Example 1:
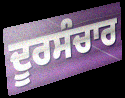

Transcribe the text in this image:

ਦੂਰਸੰਚਾਰ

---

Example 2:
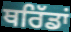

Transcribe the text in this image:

ਥਰਿੱਡਾਂ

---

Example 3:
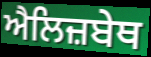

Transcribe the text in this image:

ਐਲਿਜ਼ਬੇਥ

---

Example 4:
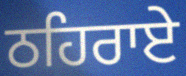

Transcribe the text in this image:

ਠਹਿਰਾਏ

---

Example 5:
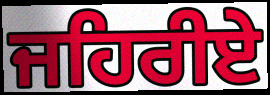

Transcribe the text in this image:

ਜਹਿਰੀਏ